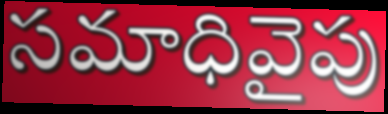
సమాధివైపు